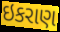
ઇકરાણ